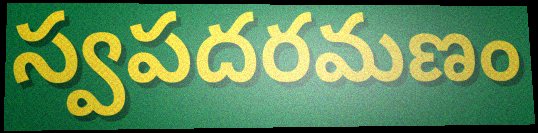
స్వపదరమణం